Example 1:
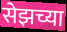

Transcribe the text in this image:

सेझच्या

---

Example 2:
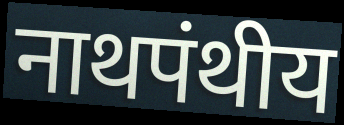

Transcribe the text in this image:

नाथपंथीय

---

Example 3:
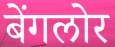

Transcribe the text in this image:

बेंगलोर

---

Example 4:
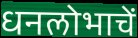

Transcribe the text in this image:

धनलोभाचें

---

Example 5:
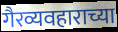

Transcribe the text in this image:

गैरव्यवहाराच्या